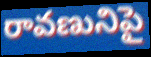
రావణునిపై